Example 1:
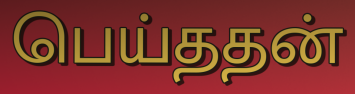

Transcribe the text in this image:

பெய்ததன்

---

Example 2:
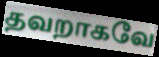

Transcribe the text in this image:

தவறாகவே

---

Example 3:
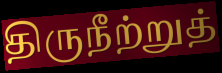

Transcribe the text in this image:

திருநீற்றுத்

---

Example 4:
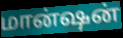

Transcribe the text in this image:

மான்ஷன்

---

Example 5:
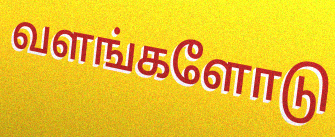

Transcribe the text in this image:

வளங்களோடு